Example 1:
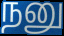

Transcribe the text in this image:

நனு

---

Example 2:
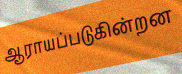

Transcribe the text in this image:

ஆராயப்படுகின்றன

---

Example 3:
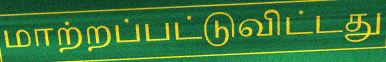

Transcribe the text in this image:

மாற்றப்பட்டுவிட்டது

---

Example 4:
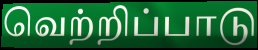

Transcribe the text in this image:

வெற்றிப்பாடு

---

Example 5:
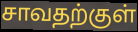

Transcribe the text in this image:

சாவதற்குள்